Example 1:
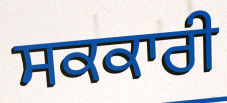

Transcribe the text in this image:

ਸਕਕਾਰੀ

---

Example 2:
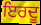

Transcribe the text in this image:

ਇਰਦੂ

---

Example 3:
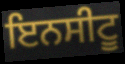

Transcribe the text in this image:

ਇਨਸੀਟੂ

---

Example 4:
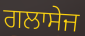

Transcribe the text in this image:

ਗਲਾਸੇਜ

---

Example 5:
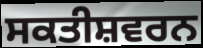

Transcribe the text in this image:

ਸਕਤੀਸ਼ਵਰਨ